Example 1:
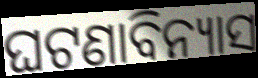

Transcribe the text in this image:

ଘଟଣାବିନ୍ୟାସ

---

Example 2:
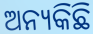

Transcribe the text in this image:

ଅନ୍ୟକିଛି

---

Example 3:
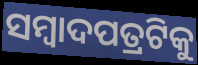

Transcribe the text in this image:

ସମ୍ବାଦପତ୍ରଟିକୁ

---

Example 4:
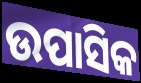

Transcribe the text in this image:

ଉପାସିକ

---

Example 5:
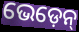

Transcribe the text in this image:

ଭେଡ଼େନ୍